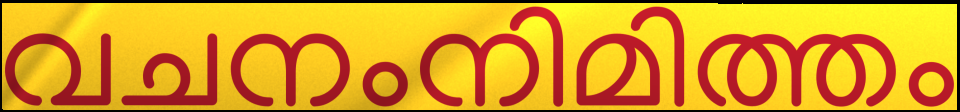
വചനംനിമിത്തം